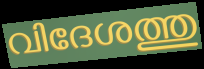
വിദേശത്തു